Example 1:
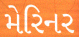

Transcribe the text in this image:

મેરિનર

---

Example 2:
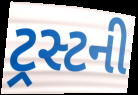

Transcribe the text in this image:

ટ્રસ્ટની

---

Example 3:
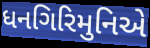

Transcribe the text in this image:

ધનગિરિમુનિએ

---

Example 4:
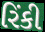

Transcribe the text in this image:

રિંકી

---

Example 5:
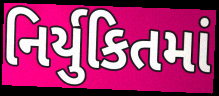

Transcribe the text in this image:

નિર્યુકિતમાં